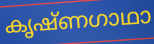
കൃഷ്ണഗാഥാ